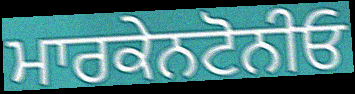
ਮਾਰਕੇਨਟੋਨੀਓ